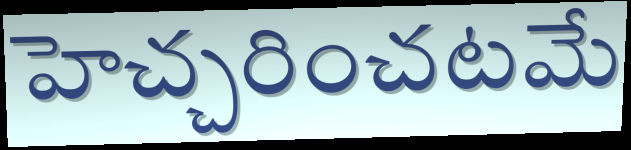
హెచ్చరించటమే